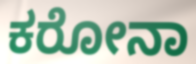
ಕರೋನಾ